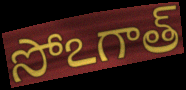
సోఽగాత్